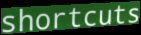
shortcuts